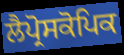
ਲੈਪ੍ਰੋਸਕੋਪਿਕ